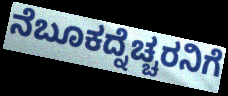
ನೆಬೂಕದ್ನೆಚ್ಚರನಿಗೆ